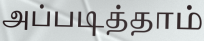
அப்படித்தாம்